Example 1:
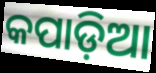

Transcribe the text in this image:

କପାଡ଼ିଆ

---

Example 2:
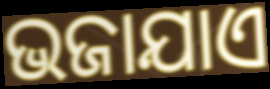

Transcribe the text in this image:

ଭଜାଯାଏ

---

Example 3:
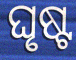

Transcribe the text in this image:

ଘୃଷ୍ଟ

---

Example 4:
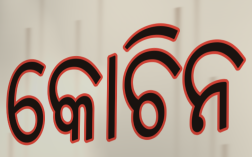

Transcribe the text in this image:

କୋଚିନ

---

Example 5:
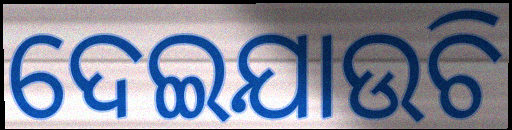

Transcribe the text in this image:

ଦେଇଯାଉଚି